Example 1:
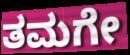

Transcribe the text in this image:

ತಮಗೇ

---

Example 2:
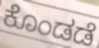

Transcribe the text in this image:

ಕೊಂಡಡೆ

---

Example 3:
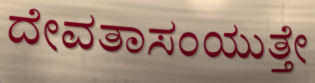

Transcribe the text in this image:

ದೇವತಾಸಂಯುತ್ತೇ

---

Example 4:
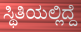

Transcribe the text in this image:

ಸ್ಥಿತಿಯಲ್ಲಿದ್ದೆ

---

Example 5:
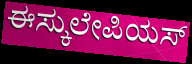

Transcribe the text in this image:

ಈಸ್ಕುಲೇಪಿಯಸ್